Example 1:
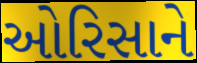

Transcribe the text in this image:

ઓરિસાને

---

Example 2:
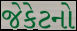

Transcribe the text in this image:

જેકેટનો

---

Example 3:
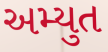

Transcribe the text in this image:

અમ્યુત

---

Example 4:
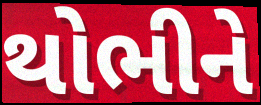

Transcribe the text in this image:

થોભીને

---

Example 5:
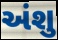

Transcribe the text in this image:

અંશુ